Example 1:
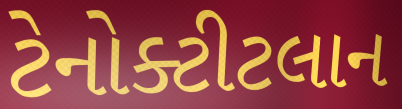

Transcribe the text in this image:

ટેનોક્ટીટલાન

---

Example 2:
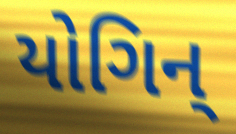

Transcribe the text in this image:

યોગિન્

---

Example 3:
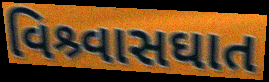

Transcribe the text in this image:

વિશ્ર્વાસઘાત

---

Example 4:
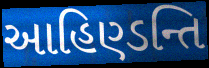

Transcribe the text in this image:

આહિણ્ડન્તિ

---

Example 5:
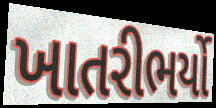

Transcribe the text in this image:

ખાતરીભર્યો